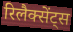
रिलैक्सेंट्स